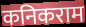
कनिकराम